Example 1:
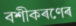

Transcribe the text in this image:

বশীকৰণেৰ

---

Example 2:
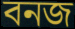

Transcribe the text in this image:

বনজ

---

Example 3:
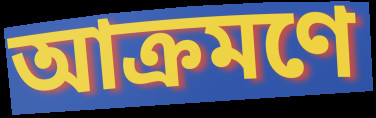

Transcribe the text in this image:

আক্ৰমণে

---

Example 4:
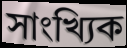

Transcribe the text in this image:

সাংখ্যিক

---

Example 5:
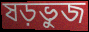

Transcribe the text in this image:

ষড়ভুজ